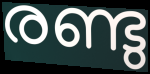
രണ്ടു